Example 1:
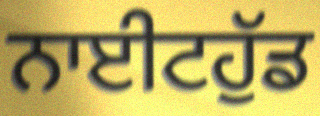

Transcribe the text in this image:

ਨਾਈਟਹੁੱਡ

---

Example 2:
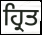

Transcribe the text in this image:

ਹ੍ਰਿਤ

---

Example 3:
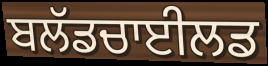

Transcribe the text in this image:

ਬਲੱਡਚਾਈਲਡ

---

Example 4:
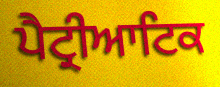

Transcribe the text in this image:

ਪੈਟ੍ਰੀਆਟਿਕ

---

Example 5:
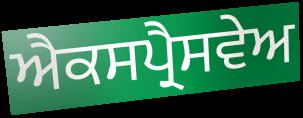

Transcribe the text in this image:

ਐਕਸਪ੍ਰੈਸਵੇਅ